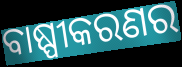
ବାଷ୍ପୀକରଣର